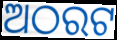
ଅଠରଟ